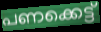
പണക്കെട്ട്